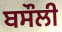
ਬਸੌਲੀ